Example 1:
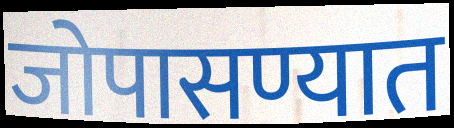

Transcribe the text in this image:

जोपासण्यात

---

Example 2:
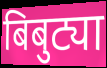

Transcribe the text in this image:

बिबुट्या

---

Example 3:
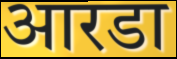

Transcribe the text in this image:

आरडा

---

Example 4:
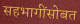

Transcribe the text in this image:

सहभागींसोबत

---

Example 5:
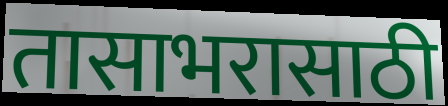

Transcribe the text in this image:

तासाभरासाठी